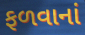
ફળવાનાં